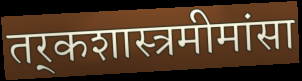
तर्कशास्त्रमीमांसा